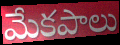
మేకపాలు